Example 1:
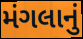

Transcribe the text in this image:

મંગલાનું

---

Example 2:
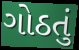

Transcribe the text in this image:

ગોઠતું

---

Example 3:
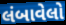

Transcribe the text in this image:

લંબાવેલો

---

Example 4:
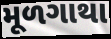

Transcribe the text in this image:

મૂળગાથા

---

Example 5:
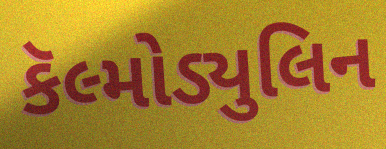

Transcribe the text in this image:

કૅલ્મોડ્યુલિન